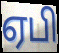
ஏபி